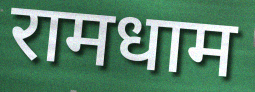
रामधाम